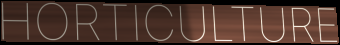
HORTICULTURE